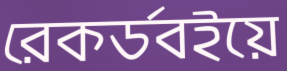
রেকর্ডবইয়ে